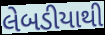
લેબડીયાથી